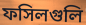
ফসিলগুলি